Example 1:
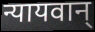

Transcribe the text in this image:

न्यायवान्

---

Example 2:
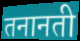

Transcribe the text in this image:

तनानती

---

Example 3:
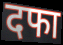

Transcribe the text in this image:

दफा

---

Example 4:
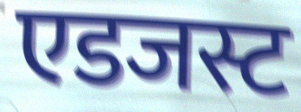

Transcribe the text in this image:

एडजस्ट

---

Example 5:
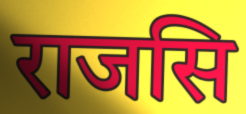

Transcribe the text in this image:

राजसि